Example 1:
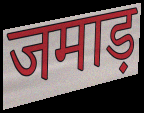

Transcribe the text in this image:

जमाड़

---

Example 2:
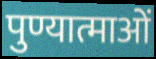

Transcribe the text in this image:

पुण्यात्माओं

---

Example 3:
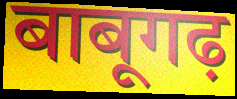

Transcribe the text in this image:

बाबूगढ़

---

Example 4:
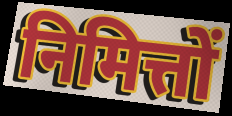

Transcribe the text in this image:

निमित्तों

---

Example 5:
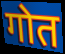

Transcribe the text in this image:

गोत